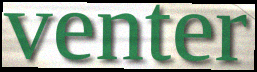
venter